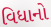
વિધાનો